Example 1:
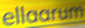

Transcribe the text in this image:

ellaarum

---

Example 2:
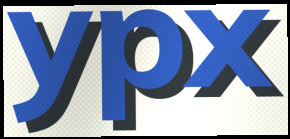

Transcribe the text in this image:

ypx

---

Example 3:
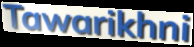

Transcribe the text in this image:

Tawarikhni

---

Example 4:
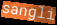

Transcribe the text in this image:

sangli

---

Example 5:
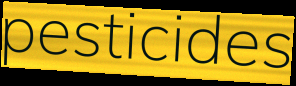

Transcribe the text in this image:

pesticides